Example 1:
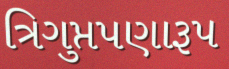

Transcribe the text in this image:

ત્રિગુપ્તપણારૂપ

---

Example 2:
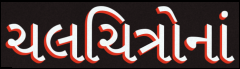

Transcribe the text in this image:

ચલચિત્રોનાં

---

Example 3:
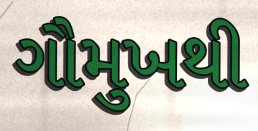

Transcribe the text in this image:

ગૌમુખથી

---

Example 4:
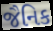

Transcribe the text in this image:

જૈનિક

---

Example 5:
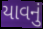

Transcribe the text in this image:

યાવનું